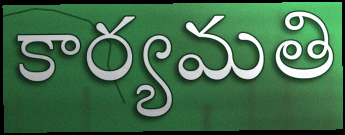
కార్యమతి